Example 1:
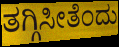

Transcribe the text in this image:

ತಗ್ಗಿಸೀತೆಂದು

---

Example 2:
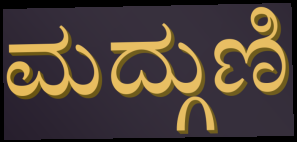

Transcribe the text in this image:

ಮದ್ಗುಣಿ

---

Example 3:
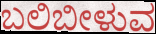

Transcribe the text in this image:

ಬಲಿಬೀಳುವ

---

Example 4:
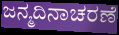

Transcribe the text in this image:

ಜನ್ಮದಿನಾಚರಣೆ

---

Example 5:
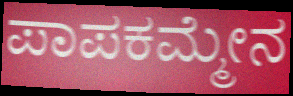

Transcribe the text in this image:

ಪಾಪಕಮ್ಮೇನ